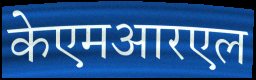
केएमआरएल